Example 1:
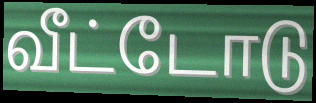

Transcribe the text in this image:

வீட்டோடு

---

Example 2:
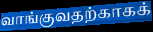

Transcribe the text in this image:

வாங்குவதற்காகக்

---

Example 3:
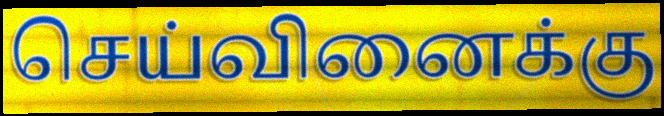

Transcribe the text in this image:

செய்வினைக்கு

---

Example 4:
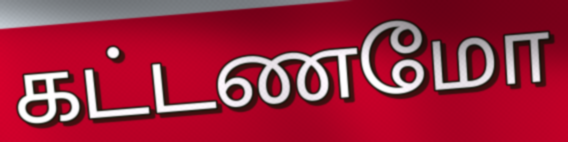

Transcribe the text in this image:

கட்டணமோ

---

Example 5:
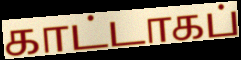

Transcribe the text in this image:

காட்டாகப்